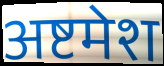
अष्टमेश